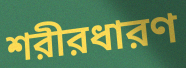
শরীরধারণ